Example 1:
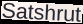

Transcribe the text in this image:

Satshrut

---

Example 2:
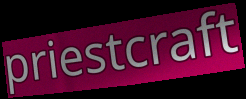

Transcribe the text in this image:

priestcraft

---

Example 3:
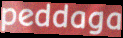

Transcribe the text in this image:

peddaga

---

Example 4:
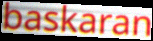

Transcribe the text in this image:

baskaran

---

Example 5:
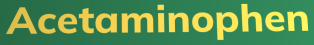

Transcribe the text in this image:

Acetaminophen